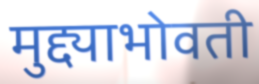
मुद्द्याभोवती